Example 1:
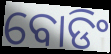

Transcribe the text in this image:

ବୋଡିଂ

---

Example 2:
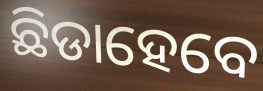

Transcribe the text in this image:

ଛିଡାହେବେ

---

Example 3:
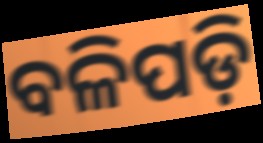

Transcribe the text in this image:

ବଳିପଡ଼ି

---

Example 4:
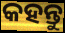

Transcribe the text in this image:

କହନ୍ତୁ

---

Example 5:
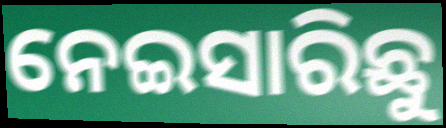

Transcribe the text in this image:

ନେଇସାରିଛୁ